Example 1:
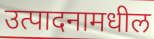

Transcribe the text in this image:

उत्पादनामधील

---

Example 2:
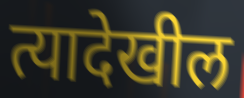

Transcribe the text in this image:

त्यादेखील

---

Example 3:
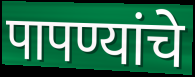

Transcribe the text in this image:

पापण्यांचे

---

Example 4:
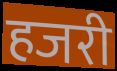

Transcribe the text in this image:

हजरी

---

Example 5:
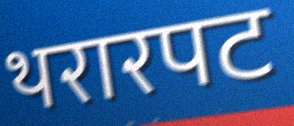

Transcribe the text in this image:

थरारपट